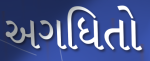
અગધિતો